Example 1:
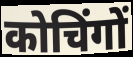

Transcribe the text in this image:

कोचिंगों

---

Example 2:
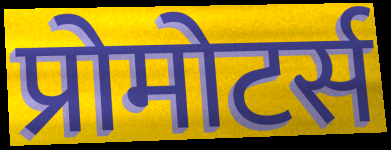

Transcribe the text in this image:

प्रोमोटर्स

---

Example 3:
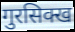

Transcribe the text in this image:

गुरसिक्ख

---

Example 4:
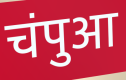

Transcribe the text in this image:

चंपुआ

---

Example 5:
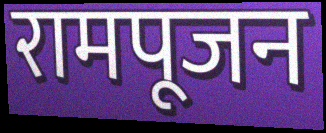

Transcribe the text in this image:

रामपूजन